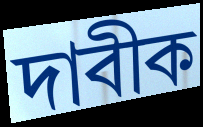
দাবীক